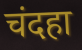
चंदहा